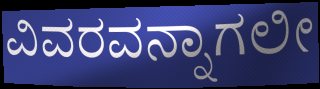
ವಿವರವನ್ನಾಗಲೀ